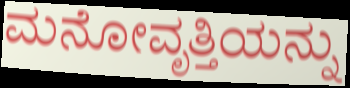
ಮನೋವೃತ್ತಿಯನ್ನು